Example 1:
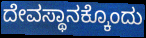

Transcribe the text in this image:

ದೇವಸ್ಥಾನಕ್ಕೊಂದು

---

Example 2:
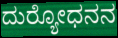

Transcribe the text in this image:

ದುರ‍್ಯೋಧನನ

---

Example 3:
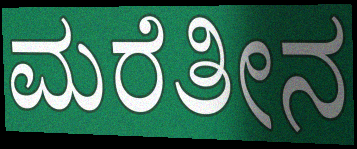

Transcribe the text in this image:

ಮರೆತೀನ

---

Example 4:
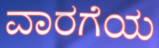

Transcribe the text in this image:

ವಾರಗೆಯ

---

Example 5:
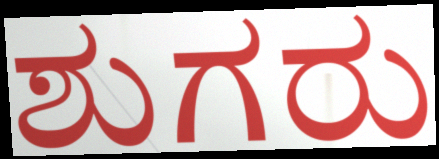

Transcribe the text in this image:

ಶುಗರು